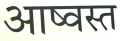
आष्वस्त